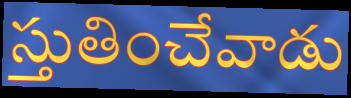
స్తుతించేవాడు